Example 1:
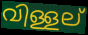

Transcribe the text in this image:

വിള്ളല്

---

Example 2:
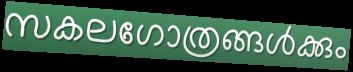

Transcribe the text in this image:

സകലഗോത്രങ്ങൾക്കും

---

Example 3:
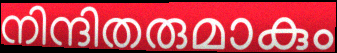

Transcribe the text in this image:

നിന്ദിതരുമാകും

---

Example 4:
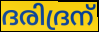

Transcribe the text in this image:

ദരിദ്രന്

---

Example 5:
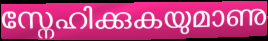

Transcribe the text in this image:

സ്നേഹിക്കുകയുമാണു